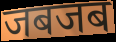
जबजब